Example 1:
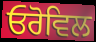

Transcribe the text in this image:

ਓਰੋਵਿਲ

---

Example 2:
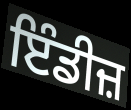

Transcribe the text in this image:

ਇੰਡੀਜ਼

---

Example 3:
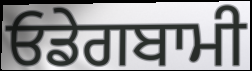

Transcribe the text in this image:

ਓਡੇਗਬਾਮੀ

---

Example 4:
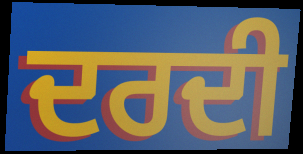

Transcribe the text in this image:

ਦਰਦੀ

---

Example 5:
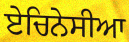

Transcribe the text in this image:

ਏਚਿਨੇਸੀਆ